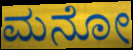
ಮನೋ